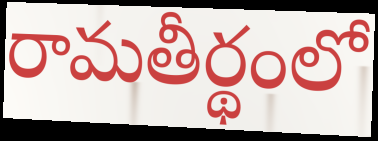
రామతీర్థంలో